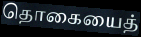
தொகையைத்